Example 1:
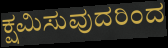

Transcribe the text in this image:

ಕ್ಷಮಿಸುವುದರಿಂದ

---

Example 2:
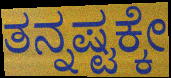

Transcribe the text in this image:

ತನ್ನಷ್ಟಕ್ಕೇ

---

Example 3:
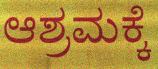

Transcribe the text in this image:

ಆಶ್ರಮಕ್ಕೆ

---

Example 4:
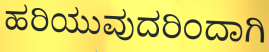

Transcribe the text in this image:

ಹರಿಯುವುದರಿಂದಾಗಿ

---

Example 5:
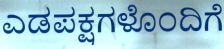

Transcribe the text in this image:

ಎಡಪಕ್ಷಗಳೊಂದಿಗೆ